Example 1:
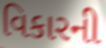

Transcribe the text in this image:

વિકારની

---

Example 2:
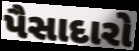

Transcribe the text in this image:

પૈસાદારો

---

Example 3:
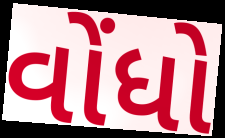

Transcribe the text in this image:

વોંધો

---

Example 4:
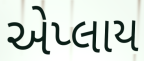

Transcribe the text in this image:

એપ્લાય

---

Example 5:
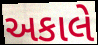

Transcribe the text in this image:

અકાલે